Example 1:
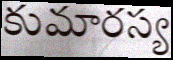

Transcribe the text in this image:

కుమారస్య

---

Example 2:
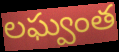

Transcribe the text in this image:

లఘ్వంత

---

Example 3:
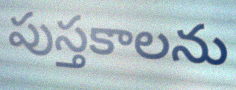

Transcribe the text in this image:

పుస్తకాలను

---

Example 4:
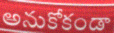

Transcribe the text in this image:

అనుకోకండా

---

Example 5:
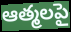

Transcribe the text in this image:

ఆత్మలపై